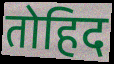
तोहिद